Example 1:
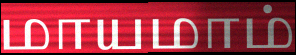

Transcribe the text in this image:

மாயமாம்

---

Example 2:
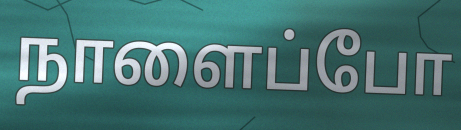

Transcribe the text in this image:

நாளைப்போ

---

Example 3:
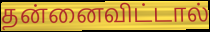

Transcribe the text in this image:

தன்னைவிட்டால்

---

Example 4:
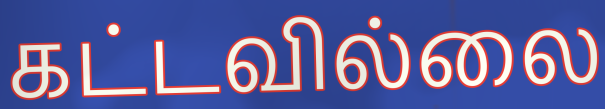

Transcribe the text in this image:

கட்டவில்லை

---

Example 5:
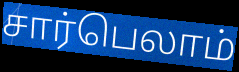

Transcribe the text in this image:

சார்பெலாம்